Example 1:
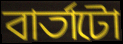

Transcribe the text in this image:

বাৰ্তাটো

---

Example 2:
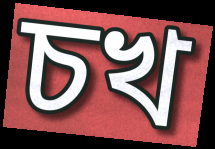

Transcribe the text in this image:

চখ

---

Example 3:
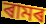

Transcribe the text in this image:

ৰামৰ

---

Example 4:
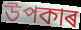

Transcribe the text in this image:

উপকাৰ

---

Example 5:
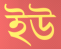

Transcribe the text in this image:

ইউ